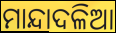
ମାନ୍ଦାଦଳିଆ